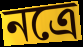
নত্রে